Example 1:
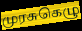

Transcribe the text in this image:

முரசுகெழு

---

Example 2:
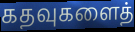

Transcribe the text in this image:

கதவுகளைத்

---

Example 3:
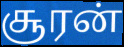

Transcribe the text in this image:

சூரன்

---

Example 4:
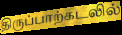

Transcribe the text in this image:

திருப்பாற்கடலில்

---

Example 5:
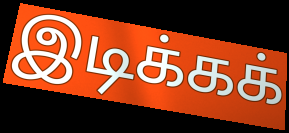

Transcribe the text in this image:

இடிக்கக்